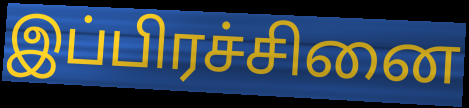
இப்பிரச்சினை